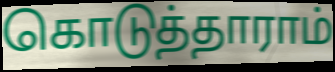
கொடுத்தாராம்